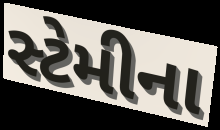
સ્ટેમીના